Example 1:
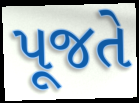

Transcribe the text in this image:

પૂજતે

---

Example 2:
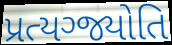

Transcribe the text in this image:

પ્રત્યગ્જ્યોતિ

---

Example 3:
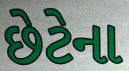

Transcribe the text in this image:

છેટેના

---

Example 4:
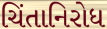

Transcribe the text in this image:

ચિંતાનિરોધ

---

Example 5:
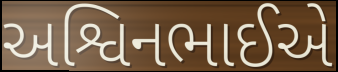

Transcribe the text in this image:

અશ્વિનભાઈએ